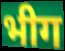
भीग